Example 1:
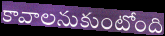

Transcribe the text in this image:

కావాలనుకుంటోంది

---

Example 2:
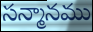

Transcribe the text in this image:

సన్మానము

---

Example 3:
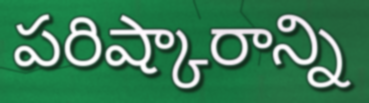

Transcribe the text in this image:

పరిష్కారాన్ని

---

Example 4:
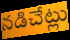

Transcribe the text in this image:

నడిచేట్లు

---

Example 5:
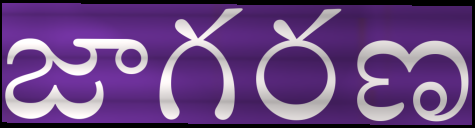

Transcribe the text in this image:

జాగరణ